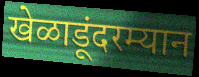
खेळाडूंदरम्यान